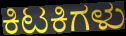
ಕಿಟಕಿಗಳು